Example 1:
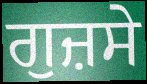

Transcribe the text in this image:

ਗੁਜ਼ਸੇ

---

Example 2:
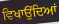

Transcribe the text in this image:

ਵਿਖਾਉਂਦਿਆਂ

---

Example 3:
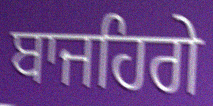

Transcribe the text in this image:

ਬਾਜਹਿਗੇ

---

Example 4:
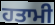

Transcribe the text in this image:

ਹਤਾਮੀ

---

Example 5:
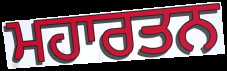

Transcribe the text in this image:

ਮਹਾਰਤਨ